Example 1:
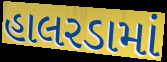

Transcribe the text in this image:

હાલરડામાં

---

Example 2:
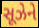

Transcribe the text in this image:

સૂઝેને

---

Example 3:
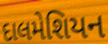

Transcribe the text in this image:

દાલમેશિયન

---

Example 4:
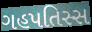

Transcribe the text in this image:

ગહપતિસ્સ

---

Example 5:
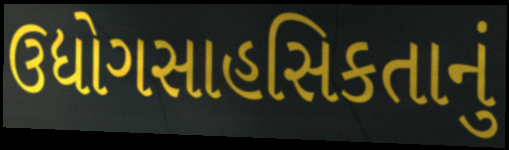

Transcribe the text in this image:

ઉદ્યોગસાહસિકતાનું